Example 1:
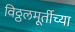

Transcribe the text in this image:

विठ्ठलमूर्तीच्या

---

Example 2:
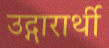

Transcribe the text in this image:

उद्गारार्थी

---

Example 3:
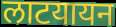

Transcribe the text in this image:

लाटयायन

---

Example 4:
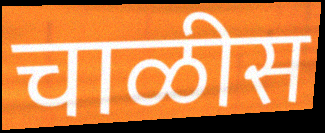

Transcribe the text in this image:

चाळीस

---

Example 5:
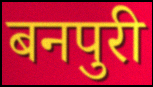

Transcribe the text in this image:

बनपुरी